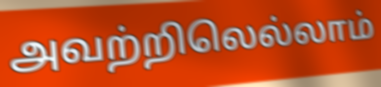
அவற்றிலெல்லாம்